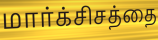
மார்க்சிசத்தை